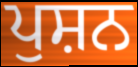
ਪੁਸ਼ਨ